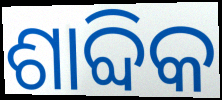
ଶାବ୍ଦିକ